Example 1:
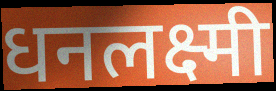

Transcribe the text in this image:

धनलक्ष्मी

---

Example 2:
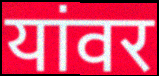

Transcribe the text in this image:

यांवर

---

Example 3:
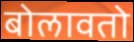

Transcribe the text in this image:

बोलावतो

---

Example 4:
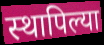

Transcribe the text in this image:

स्थापिल्या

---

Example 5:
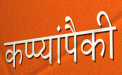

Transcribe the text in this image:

कप्प्यांपैकी